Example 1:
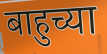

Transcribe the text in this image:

बाहुच्या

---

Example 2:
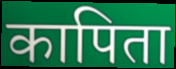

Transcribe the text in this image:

कापिता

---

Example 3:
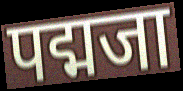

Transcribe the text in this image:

पद्मजा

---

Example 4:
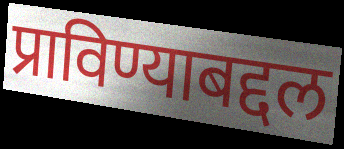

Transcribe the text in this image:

प्राविण्याबद्दल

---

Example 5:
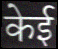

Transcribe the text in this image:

केई